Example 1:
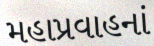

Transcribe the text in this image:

મહાપ્રવાહનાં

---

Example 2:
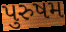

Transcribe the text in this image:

પુરુષમ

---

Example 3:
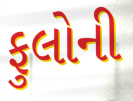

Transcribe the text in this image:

ફુલોની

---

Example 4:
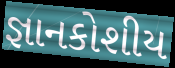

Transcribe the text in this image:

જ્ઞાનકોશીય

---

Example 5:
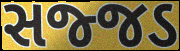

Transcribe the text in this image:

સજ્જડ